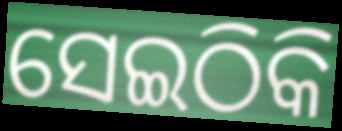
ସେଇଠିକି